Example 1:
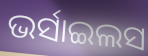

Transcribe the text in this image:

ଭର୍ସାଇଲସ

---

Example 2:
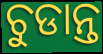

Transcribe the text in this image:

ଚୁଡାନ୍ତ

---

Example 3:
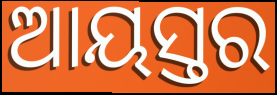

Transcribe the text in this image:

ଆୟସ୍ତର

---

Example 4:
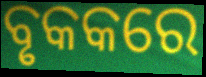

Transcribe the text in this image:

ବୃକକରେ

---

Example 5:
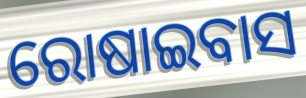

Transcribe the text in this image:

ରୋଷାଇବାସ